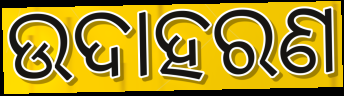
ଉଦାହରଣ